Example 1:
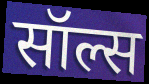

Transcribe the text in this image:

सॉल्स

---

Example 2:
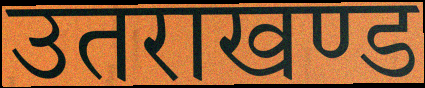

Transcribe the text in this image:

उतराखण्ड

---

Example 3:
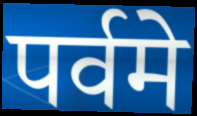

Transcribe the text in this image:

पर्वमे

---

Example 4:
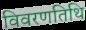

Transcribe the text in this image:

विवरणतिथि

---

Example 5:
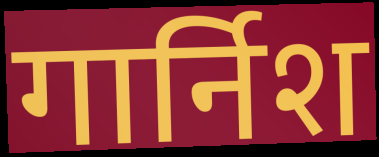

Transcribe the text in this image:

गार्निश